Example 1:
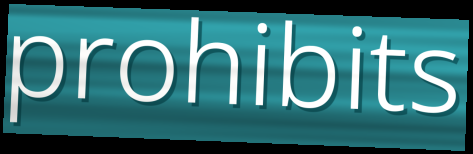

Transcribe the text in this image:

prohibits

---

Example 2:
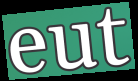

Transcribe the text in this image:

eut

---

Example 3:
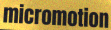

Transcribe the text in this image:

micromotion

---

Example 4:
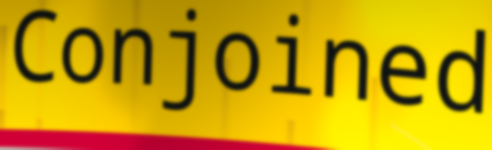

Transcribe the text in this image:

Conjoined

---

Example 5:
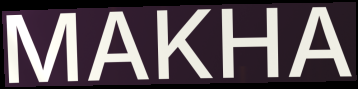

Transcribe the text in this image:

MAKHA